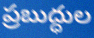
ప్రబుద్ధుల